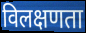
विलक्षणता